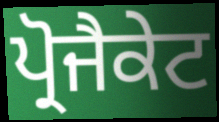
ਪ੍ਰੋਜੈਕੇਟ